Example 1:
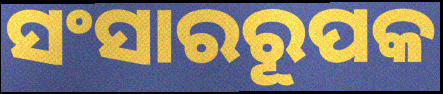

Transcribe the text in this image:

ସଂସାରରୂପକ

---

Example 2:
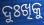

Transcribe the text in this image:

ଦୁଃଖିକୁ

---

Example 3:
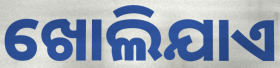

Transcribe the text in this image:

ଖୋଲିଯାଏ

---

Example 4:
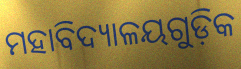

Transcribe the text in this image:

ମହାବିଦ୍ୟାଳୟଗୁଡ଼ିକ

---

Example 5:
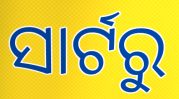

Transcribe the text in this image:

ସାର୍ଟରୁ